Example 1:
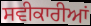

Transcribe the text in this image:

ਸਵੀਕਾਰੀਆਂ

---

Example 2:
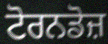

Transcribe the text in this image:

ਟੋਰਨਡੋਜ਼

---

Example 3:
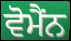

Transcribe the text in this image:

ਵੋਮੈਂਨ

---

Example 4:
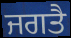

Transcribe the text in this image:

ਜਗਤੈ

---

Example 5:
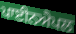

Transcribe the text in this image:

ਪਾਈਨਐਪਲ